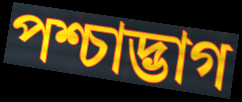
পশ্চাদ্ভাগ